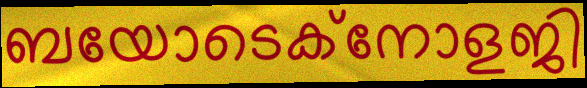
ബയോടെക്നോളജി